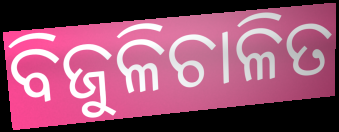
ବିଜୁଳିଚାଳିତ